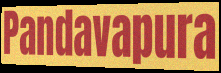
Pandavapura